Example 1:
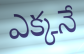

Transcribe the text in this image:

ఎక్కనే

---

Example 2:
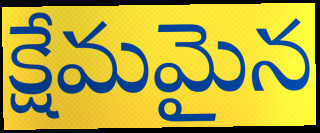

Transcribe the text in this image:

క్షేమమైన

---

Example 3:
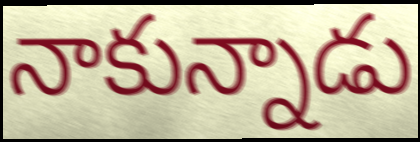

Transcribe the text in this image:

నాకున్నాడు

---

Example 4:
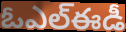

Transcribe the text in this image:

ఓఎల్ఈడీ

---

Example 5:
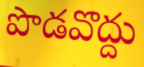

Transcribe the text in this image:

పొడవొద్దు